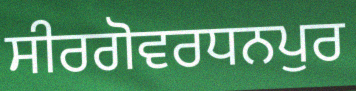
ਸੀਰਗੋਵਰਧਨਪੁਰ